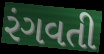
રંગવતી